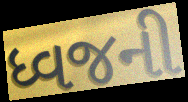
ધ્વજની